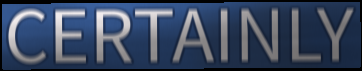
CERTAINLY